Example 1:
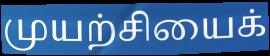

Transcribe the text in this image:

முயற்சியைக்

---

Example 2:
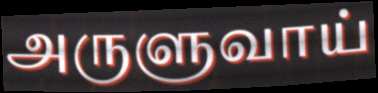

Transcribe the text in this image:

அருளுவாய்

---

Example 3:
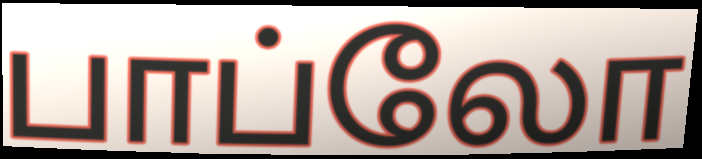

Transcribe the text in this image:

பாப்லோ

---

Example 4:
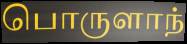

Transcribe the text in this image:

பொருளாந்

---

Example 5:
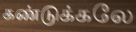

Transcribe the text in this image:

கண்டுக்கலே